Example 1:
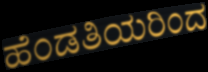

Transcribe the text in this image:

ಹೆಂಡತಿಯರಿಂದ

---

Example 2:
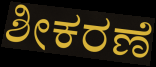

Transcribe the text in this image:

ಶೀಕರಣೆ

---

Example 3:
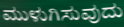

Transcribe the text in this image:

ಮುಳುಗಿಸುವುದು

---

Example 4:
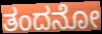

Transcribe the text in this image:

ತಂದನೋ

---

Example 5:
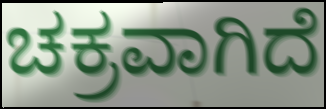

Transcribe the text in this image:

ಚಕ್ರವಾಗಿದೆ